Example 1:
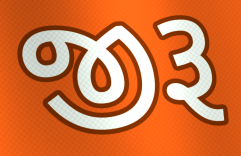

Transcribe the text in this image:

જીરૂ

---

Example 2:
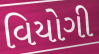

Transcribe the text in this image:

વિયોગી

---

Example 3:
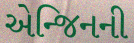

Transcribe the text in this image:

એન્જિનની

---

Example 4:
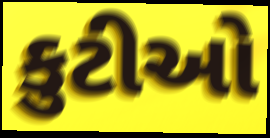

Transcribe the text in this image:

કુટીઓ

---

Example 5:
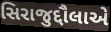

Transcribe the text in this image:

સિરાજુદ્દૌલાએ